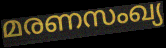
മരണസംഖ്യ